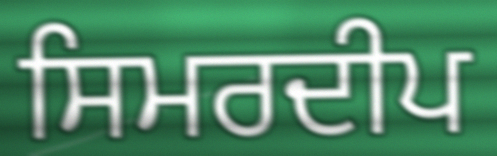
ਸਿਮਰਦੀਪ